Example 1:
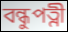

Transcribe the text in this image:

বন্ধুপত্নী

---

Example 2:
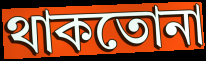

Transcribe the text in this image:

থাকতোনা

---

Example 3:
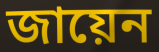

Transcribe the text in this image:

জায়েন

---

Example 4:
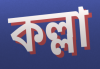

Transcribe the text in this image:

কল্লা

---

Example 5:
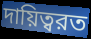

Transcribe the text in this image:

দায়িত্বরত